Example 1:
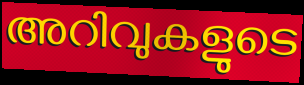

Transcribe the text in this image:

അറിവുകളുടെ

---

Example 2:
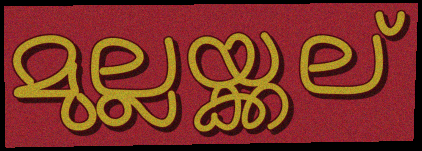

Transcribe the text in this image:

മുല്ലയ്ക്കല്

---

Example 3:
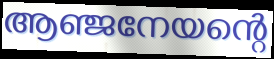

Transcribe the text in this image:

ആഞ്ജനേയന്റെ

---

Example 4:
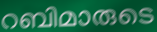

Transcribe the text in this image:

റബിമാരുടെ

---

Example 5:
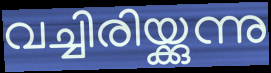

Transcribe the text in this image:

വച്ചിരിയ്ക്കുന്നു